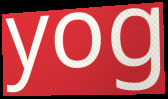
yog